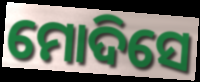
ମୋଦିସେ